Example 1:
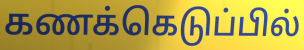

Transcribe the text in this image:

கணக்கெடுப்பில்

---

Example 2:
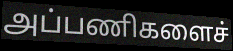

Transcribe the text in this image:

அப்பணிகளைச்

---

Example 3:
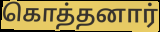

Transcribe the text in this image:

கொத்தனார்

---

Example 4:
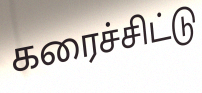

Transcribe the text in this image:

கரைச்சிட்டு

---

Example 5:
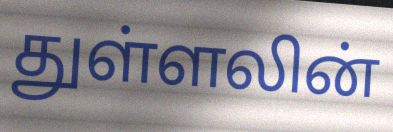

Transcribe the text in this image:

துள்ளலின்